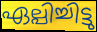
ഏല്പിച്ചിട്ടു